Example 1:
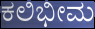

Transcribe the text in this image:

ಕಲಿಭೀಮ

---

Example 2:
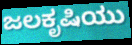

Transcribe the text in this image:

ಜಲಕೃಷಿಯು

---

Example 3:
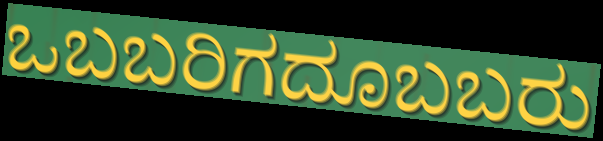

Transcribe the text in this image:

ಒಬಬರಿಗದೂಬಬರು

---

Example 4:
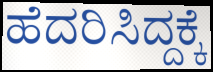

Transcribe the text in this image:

ಹೆದರಿಸಿದ್ದಕ್ಕೆ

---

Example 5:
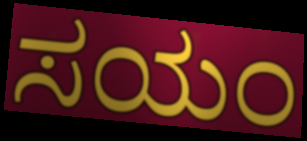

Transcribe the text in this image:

ಸಯಂ